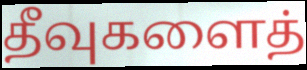
தீவுகளைத்